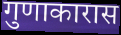
गुणाकारास